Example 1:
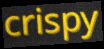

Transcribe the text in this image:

crispy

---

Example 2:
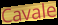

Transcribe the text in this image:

Cavale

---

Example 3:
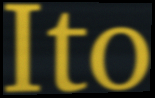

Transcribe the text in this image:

Ito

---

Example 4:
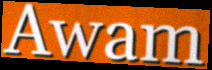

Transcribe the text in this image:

Awam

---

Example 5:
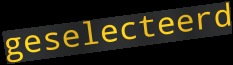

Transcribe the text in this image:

geselecteerd